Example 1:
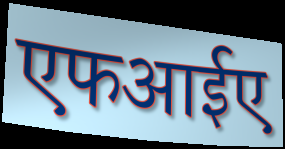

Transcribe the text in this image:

एफआईए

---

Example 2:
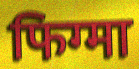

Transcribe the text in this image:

फिग्मा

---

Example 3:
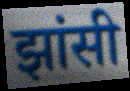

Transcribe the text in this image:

झांसी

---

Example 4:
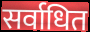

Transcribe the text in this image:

सर्वाधित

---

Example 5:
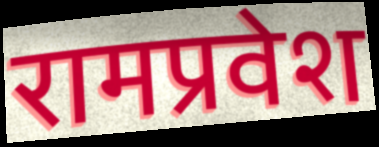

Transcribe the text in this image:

रामप्रवेश